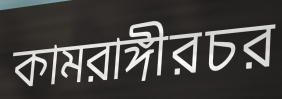
কামরাঙ্গীরচর